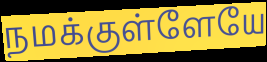
நமக்குள்ளேயே